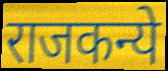
राजकन्ये